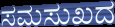
ಸಮಸುಖದ